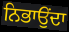
ਨਿਭਾਉਂਦਾ